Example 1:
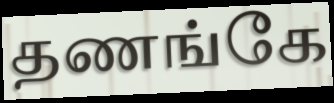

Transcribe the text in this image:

தணங்கே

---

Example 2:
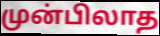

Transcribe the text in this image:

முன்பிலாத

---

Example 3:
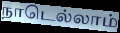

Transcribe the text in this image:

நாடெல்லாம்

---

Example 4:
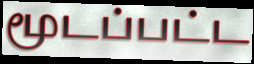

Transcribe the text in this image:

மூடப்பட்ட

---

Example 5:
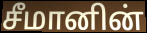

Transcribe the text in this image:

சீமானின்